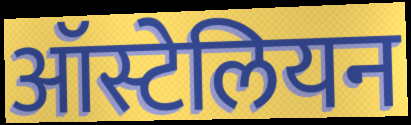
ऑस्टेलियन